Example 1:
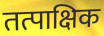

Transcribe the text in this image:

तत्पाक्षिक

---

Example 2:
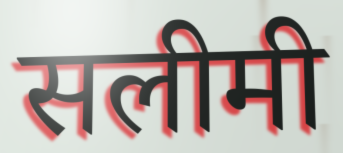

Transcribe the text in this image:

सलीमी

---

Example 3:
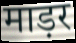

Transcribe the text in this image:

माड़र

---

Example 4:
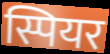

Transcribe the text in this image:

स्पियर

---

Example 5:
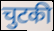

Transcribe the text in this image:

चुटकी